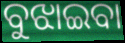
ବୁଝାଇବା